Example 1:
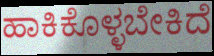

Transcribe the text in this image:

ಹಾಕಿಕೊಳ್ಳಬೇಕಿದೆ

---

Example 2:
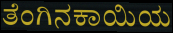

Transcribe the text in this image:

ತೆಂಗಿನಕಾಯಿಯ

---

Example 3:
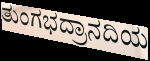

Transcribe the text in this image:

ತುಂಗಭದ್ರಾನದಿಯ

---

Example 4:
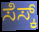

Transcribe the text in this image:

ಸೆಸ್ಕ್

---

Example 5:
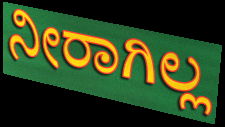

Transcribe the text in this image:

ನೀರಾಗಿಲ್ಲ